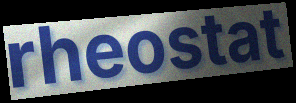
rheostat